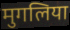
मुगलिया